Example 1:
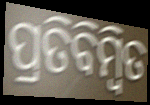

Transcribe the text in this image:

ପ୍ରତିବିମ୍ବିତ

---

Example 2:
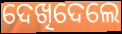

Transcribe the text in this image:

ଦେଖିଦେଲେ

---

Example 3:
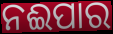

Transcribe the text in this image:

ନଈପାର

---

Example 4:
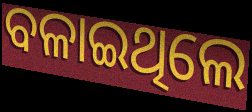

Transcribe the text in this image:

ବଳାଇଥିଲେ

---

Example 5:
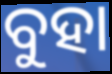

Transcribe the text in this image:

ବୁହା